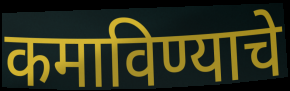
कमाविण्याचे